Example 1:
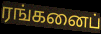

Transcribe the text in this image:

ரங்கனைப்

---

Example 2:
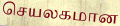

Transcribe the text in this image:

செயலகமான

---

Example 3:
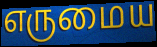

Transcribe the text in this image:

எருமைய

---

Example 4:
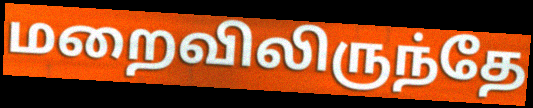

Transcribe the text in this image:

மறைவிலிருந்தே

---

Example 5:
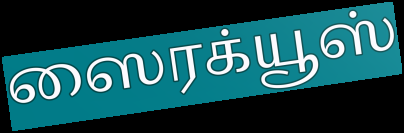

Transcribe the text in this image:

ஸைரக்யூஸ்